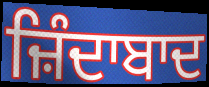
ਜ਼ਿੰਦਾਬਾਦ